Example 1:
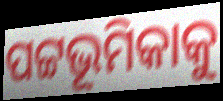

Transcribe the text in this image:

ପଟ୍ଟଭୂମିକାକୁ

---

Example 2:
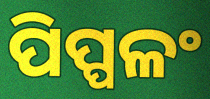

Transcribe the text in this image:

ପିପ୍ପଳଂ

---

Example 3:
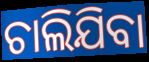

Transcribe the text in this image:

ଚାଲିଯିବା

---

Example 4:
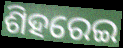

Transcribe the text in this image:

ଶିହରେଇ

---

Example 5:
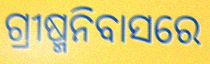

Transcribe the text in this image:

ଗ୍ରୀଷ୍ମନିବାସରେ